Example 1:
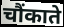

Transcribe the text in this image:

चौंकाते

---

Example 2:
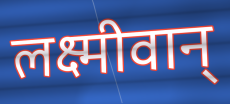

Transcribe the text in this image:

लक्ष्मीवान्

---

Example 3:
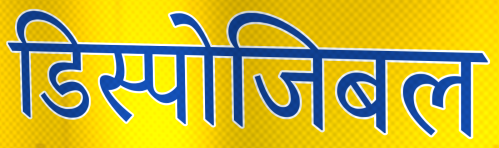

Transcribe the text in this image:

डिस्पोजिबल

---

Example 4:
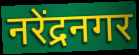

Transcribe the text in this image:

नरेंद्रनगर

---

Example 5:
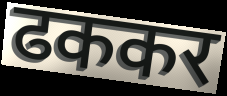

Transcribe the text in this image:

ढककर